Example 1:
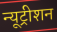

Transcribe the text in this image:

न्यूट्रीशन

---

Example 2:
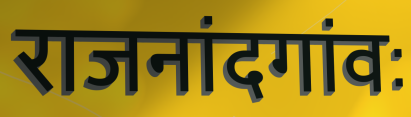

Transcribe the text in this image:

राजनांदगांवः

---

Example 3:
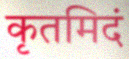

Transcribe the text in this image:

कृतमिदं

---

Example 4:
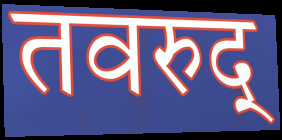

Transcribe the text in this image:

तवरुद्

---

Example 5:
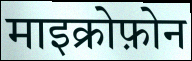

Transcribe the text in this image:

माइक्रोफ़ोन